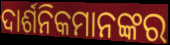
ଦାର୍ଶନିକମାନଙ୍କର